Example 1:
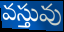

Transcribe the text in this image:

వస్తువు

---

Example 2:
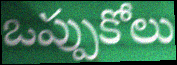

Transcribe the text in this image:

ఒప్పుకోలు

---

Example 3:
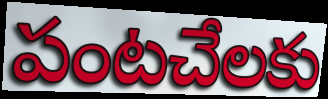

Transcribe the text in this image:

పంటచేలకు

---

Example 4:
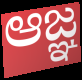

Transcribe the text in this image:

ఆజ్ఞ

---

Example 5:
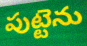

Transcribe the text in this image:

పుట్టెను